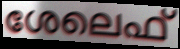
ശേലെഫ്